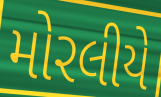
મોરલીયે